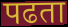
पढता